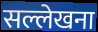
सल्लेखना